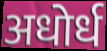
अधोर्ध